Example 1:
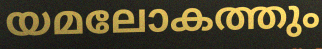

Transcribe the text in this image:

യമലോകത്തും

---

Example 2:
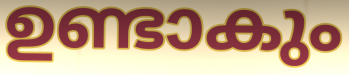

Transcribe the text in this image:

ഉണ്ടാകും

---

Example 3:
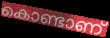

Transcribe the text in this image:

കൊണ്ടാണ്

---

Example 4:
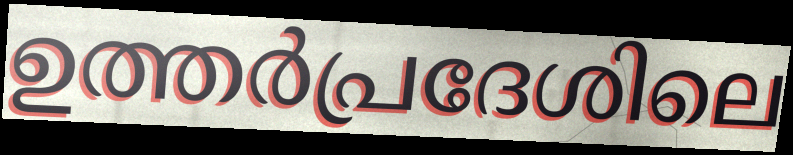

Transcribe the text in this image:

ഉത്തർപ്രദേശിലെ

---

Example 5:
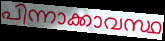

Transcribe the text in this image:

പിന്നാക്കാവസ്ഥ